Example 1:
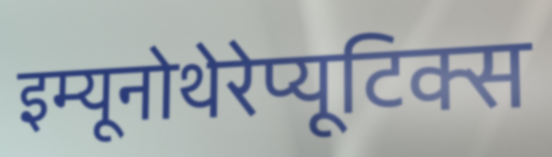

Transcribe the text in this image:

इम्यूनोथेरेप्यूटिक्स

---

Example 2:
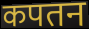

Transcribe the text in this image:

कपतन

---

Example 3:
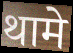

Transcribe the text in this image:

थामे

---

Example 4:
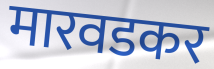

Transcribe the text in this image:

मारवडकर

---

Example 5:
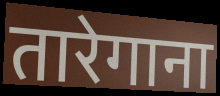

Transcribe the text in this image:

तारेगाना